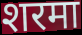
शरमा